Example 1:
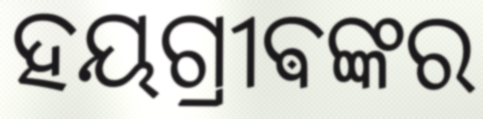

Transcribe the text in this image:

ହୟଗ୍ରୀଵଙ୍କର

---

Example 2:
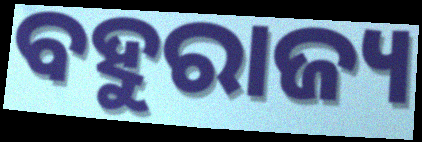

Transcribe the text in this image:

ବହୁରାଜ୍ୟ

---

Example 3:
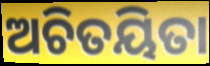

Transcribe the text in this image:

ଅଚିତୟିତା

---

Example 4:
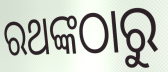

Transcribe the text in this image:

ରଥଙ୍କଠାରୁ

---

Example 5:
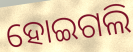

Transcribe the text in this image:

ହୋଇଗଲି